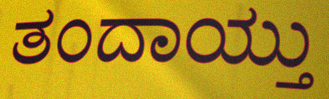
ತಂದಾಯ್ತು